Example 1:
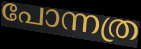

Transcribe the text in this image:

പോന്നത്ര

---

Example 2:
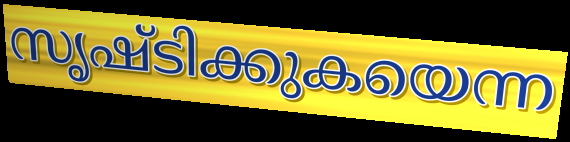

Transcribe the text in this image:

സൃഷ്ടിക്കുകയെന്ന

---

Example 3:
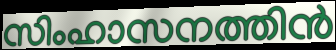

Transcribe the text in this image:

സിംഹാസനത്തിൻ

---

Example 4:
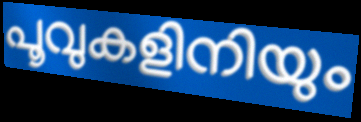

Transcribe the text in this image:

പൂവുകളിനിയും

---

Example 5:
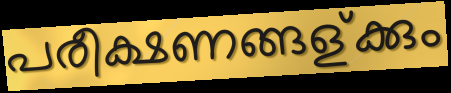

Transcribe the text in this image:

പരീക്ഷണങ്ങള്ക്കും